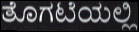
ತೊಗಟೆಯಲ್ಲಿ